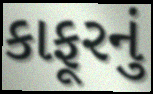
કાફૂરનું